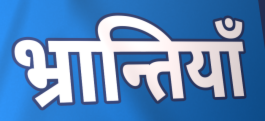
भ्रान्तियाँ